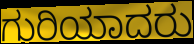
ಗುರಿಯಾದರು